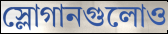
স্লোগানগুলোও